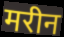
मरीन